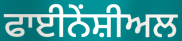
ਫਾਈਨੇਂਸ਼ੀਅਲ